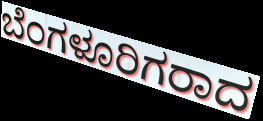
ಬೆಂಗಳೂರಿಗರಾದ